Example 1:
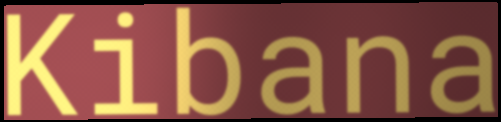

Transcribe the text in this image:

Kibana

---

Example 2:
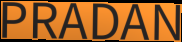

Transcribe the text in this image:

PRADAN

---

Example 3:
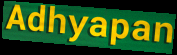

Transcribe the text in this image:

Adhyapan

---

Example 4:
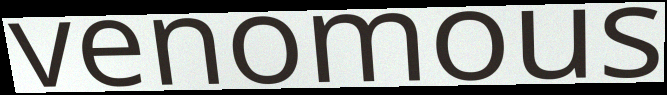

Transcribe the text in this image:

venomous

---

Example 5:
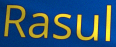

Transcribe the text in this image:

Rasul